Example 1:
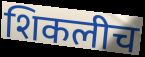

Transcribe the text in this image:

शिकलीच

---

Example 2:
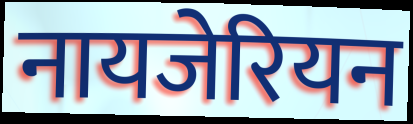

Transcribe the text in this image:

नायजेरियन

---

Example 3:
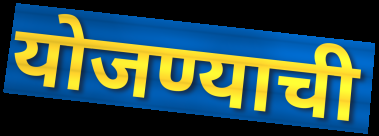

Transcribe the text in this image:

योजण्याची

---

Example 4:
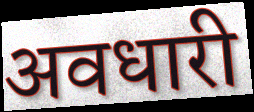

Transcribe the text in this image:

अवधारी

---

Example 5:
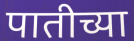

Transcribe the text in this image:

पातीच्या